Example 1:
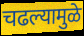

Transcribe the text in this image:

चढल्यामुळे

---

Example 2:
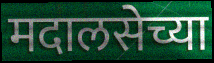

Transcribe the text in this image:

मदालसेच्या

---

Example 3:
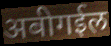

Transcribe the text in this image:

अबीगईल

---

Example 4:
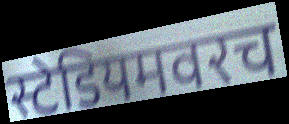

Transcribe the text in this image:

स्टेडियमवरच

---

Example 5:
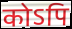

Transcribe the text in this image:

कोऽपि